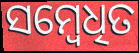
ସମ୍ବେଧିତ